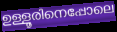
ഉള്ളൂരിനെപ്പോലെ